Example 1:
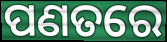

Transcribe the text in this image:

ପଣତରେ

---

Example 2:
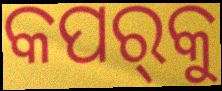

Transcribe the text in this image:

କପର୍‌କୁ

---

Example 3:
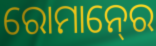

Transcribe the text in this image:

ରୋମାନ୍‍ରେ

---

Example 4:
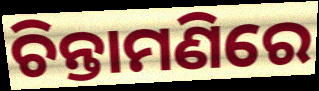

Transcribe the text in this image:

ଚିନ୍ତାମଣିରେ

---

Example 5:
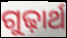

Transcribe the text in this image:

ଗୁଢ଼ାର୍ଥ